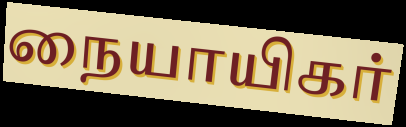
நையாயிகர்